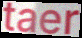
taer